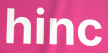
hinc